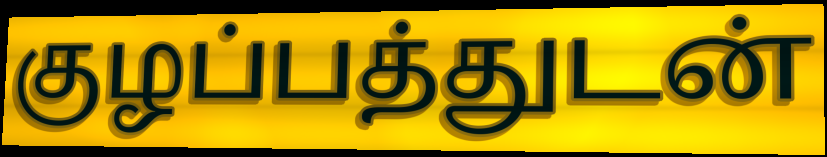
குழப்பத்துடன்